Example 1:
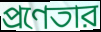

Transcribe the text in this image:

প্রণেতার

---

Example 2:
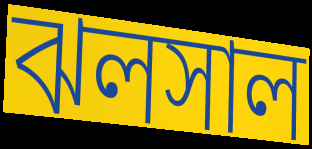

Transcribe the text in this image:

ঝলসাল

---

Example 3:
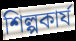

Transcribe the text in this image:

শিল্পকার্য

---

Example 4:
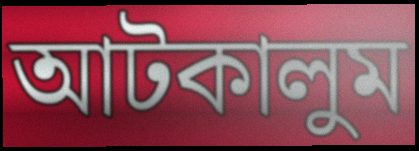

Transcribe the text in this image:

আটকালুম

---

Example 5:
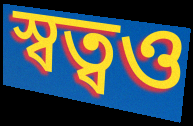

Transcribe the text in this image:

স্বত্বও